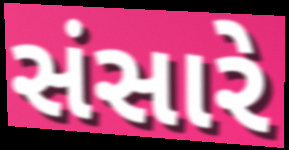
સંસારે